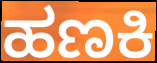
ಹಣಕಿ